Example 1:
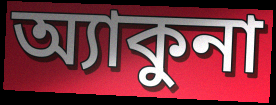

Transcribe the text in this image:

অ্যাকুনা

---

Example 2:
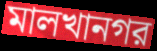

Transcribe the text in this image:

মালখানগর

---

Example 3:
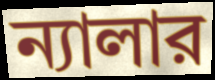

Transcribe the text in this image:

ন্যালার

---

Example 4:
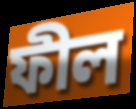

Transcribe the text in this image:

ফীল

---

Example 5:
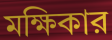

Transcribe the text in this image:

মক্ষিকার